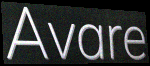
Avare